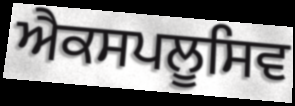
ਐਕਸਪਲੂਸਿਵ